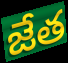
జేత